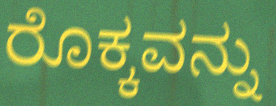
ರೊಕ್ಕವನ್ನು